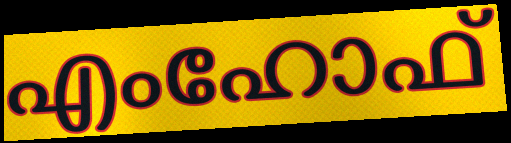
എംഹോഫ്